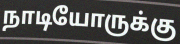
நாடியோருக்கு